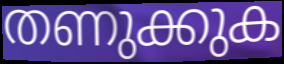
തണുക്കുക